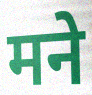
मने